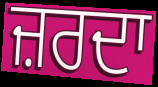
ਜ਼ਰਦਾ